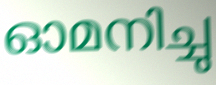
ഓമനിച്ചു